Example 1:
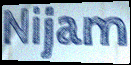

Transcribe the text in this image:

Nijam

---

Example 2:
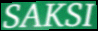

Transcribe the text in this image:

SAKSI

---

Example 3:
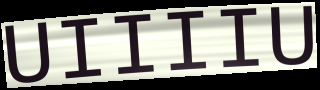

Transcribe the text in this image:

UIIIIU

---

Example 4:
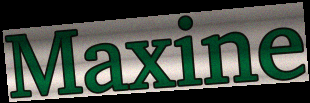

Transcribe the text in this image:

Maxine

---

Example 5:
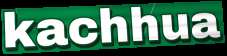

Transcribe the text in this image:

kachhua